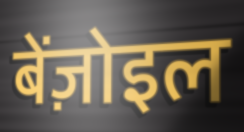
बेंज़ोइल